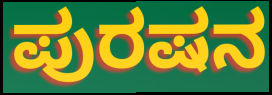
ಪುರಷನ